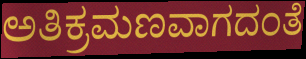
ಅತಿಕ್ರಮಣವಾಗದಂತೆ